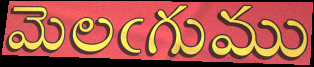
మెలఁగుము